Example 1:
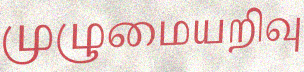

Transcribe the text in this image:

முழுமையறிவு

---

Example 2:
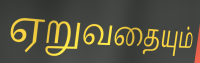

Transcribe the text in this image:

ஏறுவதையும்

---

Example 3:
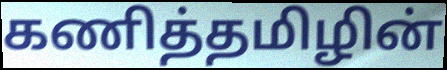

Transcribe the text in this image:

கணித்தமிழின்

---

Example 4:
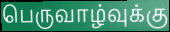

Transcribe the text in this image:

பெருவாழ்வுக்கு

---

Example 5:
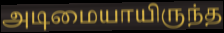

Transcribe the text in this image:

அடிமையாயிருந்த